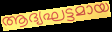
ആദ്യഘട്ടമായ